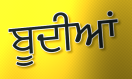
ਬੂਦੀਆਂ